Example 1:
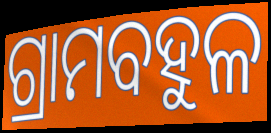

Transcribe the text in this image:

ଗ୍ରାମବହୁଳ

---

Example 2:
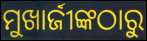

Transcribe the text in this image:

ମୁଖାର୍ଜୀଙ୍କଠାରୁ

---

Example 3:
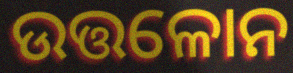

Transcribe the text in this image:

ଉତ୍ତଳୋନ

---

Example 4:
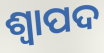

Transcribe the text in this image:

ଶ୍ୱାପଦ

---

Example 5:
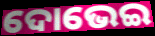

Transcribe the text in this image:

ଦୋଭେଇ